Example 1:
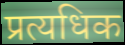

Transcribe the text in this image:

प्रत्यधिक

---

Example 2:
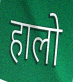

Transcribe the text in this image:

हालो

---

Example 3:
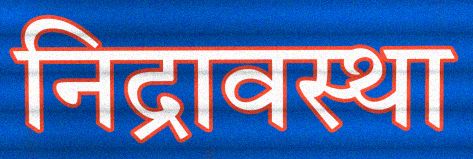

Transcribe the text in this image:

निद्रावस्था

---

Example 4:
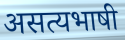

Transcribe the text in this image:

असत्यभाषी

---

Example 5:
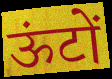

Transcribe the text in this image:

ऊंटों